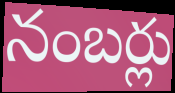
నంబర్లు